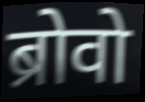
ब्रोवो